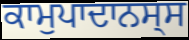
ਕਾਮੁਪਾਦਾਨਸ੍ਸ